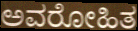
ಅವರೋಹಿತ